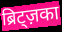
ब्रिट्ज़का